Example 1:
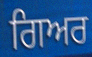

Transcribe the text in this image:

ਗਿਅਰ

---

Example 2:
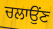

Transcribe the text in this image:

ਚਲਾਉਂਣ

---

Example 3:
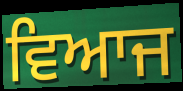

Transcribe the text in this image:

ਵਿਆਜ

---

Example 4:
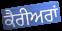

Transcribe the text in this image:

ਕੈਰੀਅਰਾਂ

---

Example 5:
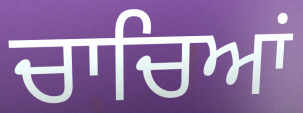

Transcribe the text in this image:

ਚਾਚਿਆਂ